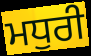
ਮਧੁਰੀ